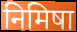
निमिषा